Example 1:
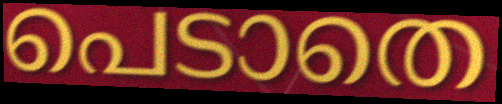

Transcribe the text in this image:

പെടാതെ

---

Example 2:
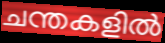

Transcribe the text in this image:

ചന്തകളിൽ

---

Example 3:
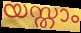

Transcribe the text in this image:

യസ്താം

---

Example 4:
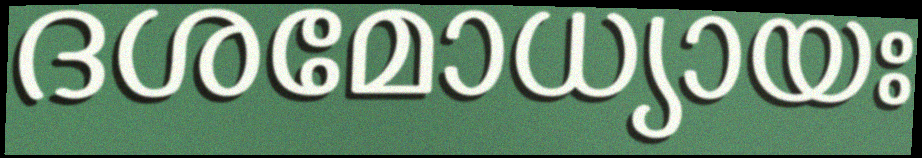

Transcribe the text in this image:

ദശമോധ്യായഃ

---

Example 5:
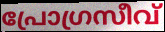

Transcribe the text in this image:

പ്രോഗ്രസീവ്